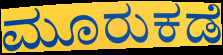
ಮೂರುಕಡೆ